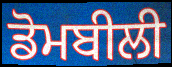
ਡੋਮਬੀਲੀ